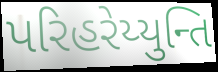
પરિહરેય્યુન્તિ